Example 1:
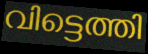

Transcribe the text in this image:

വിട്ടെത്തി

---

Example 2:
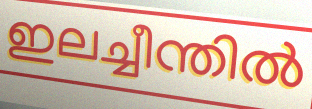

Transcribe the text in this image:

ഇലച്ചീന്തിൽ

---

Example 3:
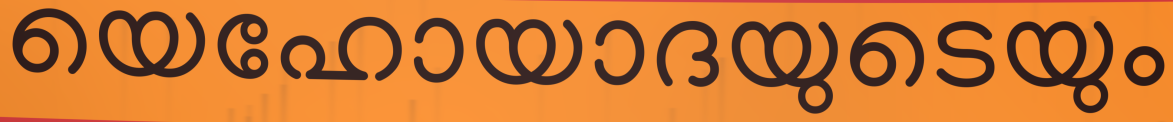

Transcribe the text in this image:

യെഹോയാദയുടെയും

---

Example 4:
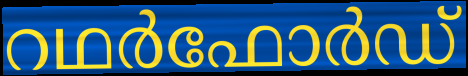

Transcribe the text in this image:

റഥർഫോർഡ്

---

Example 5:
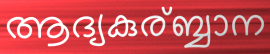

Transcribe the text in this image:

ആദ്യകുര്ബ്ബാന